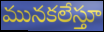
మునకలేస్తూ